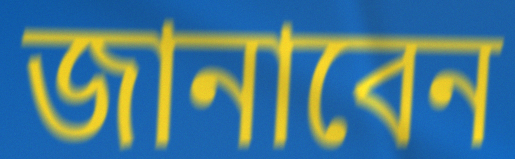
জানাবেন